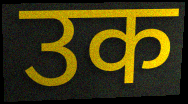
उक